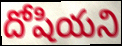
దోషియని